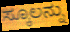
ಸ್ಕೂಲನ್ನು